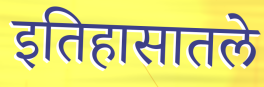
इतिहासातले